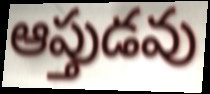
ఆప్తుడవు